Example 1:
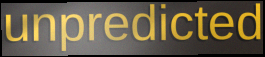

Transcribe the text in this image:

unpredicted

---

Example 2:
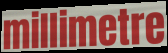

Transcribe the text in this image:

millimetre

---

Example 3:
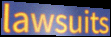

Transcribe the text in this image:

lawsuits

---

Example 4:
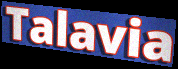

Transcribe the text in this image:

Talavia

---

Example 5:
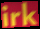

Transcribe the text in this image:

irk